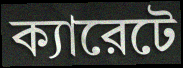
ক্যারেটে